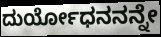
ದುರ್ಯೋಧನನನ್ನೇ